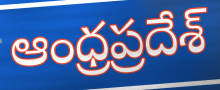
ఆంధ్రప్రదేశ్